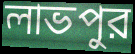
লাভপুর